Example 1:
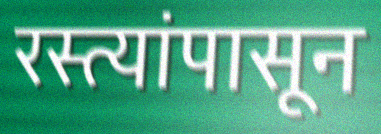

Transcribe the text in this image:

रस्त्यांपासून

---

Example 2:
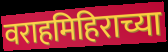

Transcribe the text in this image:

वराहमिहिराच्या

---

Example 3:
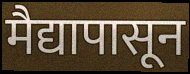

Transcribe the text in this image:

मैद्यापासून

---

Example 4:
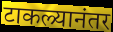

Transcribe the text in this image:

टाकल्यानंतर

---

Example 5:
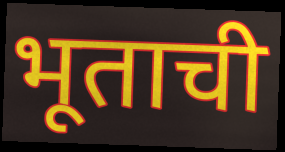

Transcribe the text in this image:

भूताची